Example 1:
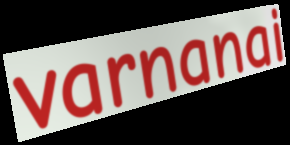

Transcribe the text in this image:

varnanai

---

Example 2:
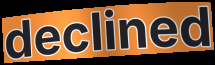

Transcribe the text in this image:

declined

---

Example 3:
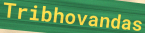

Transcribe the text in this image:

Tribhovandas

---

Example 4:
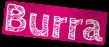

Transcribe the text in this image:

Burra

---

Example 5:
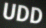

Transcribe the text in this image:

UDD